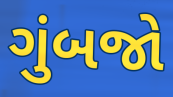
ગુંબજો